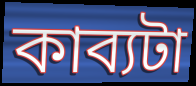
কাব্যটা